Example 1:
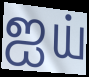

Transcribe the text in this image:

ஐய்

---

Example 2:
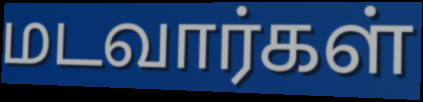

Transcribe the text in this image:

மடவார்கள்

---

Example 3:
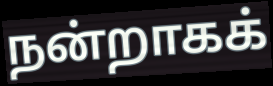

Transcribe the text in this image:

நன்றாகக்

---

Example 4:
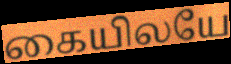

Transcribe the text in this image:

கையிலயே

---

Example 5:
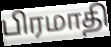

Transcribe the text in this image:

பிரமாதி